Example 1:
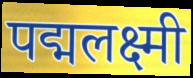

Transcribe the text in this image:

पद्मलक्ष्मी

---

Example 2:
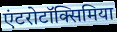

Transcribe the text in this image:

एंटरोटॉक्सिमिया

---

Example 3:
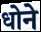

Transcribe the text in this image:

धोने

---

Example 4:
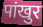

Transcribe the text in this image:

पांखुर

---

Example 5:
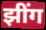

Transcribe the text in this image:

झींग